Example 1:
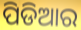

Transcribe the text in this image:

ପିଡିଆର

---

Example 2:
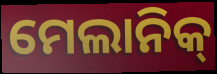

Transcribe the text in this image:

ମେଲାନିକ୍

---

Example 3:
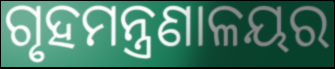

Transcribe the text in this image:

ଗୃହମନ୍ତ୍ରଣାଳୟର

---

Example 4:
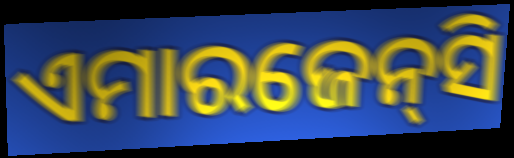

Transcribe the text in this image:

ଏମାରଜେନ୍‌ସି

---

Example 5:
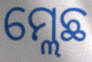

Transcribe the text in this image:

ମ୍ଲେଛ